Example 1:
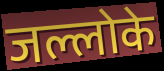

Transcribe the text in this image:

जल्लोके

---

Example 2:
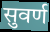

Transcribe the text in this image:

सुवर्ण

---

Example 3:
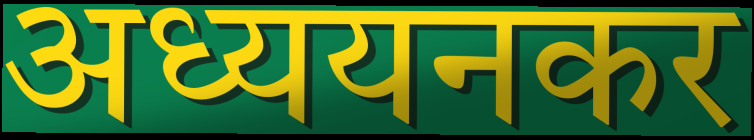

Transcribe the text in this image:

अध्ययनकर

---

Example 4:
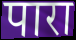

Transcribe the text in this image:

पारा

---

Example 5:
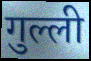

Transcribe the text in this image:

गुल्ली